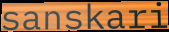
sanskari